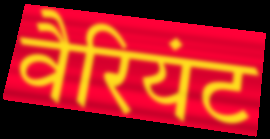
वैरियंट